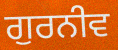
ਗੁਰਨੀਵ